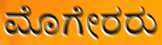
ಮೊಗೇರರು